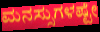
ಮನಸ್ಸುಗಳಷ್ಟೇ